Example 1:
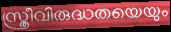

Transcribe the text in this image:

സ്ത്രീവിരുദ്ധതയെയും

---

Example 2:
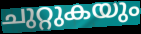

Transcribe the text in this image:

ചുറ്റുകയും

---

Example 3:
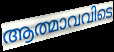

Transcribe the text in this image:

ആത്മാവവിടെ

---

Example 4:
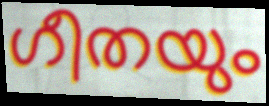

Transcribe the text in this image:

ഗീതയും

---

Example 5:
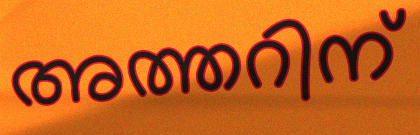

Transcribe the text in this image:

അത്തറിന്